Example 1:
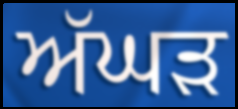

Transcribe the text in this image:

ਅੱਘੜ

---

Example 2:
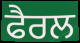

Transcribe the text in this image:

ਫੈਰਲ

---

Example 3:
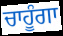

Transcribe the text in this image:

ਚਾਹੂੰਗਾ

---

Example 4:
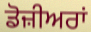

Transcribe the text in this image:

ਡੋਜ਼ੀਅਰਾਂ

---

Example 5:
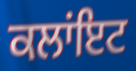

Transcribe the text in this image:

ਕਲਾਂਇਟ